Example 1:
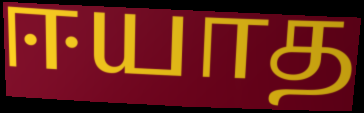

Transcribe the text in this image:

ஈயாத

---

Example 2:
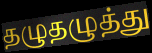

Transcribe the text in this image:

தழுதழுத்து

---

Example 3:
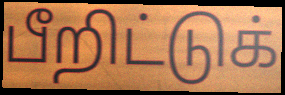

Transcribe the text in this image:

பீறிட்டுக்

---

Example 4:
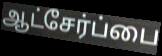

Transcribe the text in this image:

ஆட்சேர்ப்பை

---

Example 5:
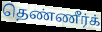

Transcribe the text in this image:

தெண்ணீர்க்